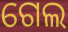
ଗେଲ